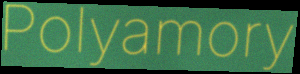
Polyamory